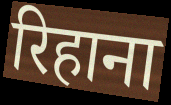
रिहाना